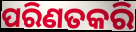
ପରିଣତକରି